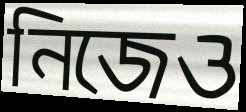
নিজেও